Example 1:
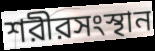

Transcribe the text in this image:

শরীরসংস্থান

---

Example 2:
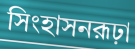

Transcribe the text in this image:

সিংহাসনরূঢ়া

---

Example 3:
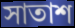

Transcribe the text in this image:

সাতাশ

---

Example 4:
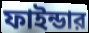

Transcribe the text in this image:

ফাইন্ডার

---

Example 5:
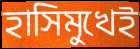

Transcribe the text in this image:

হাসিমুখেই